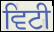
ਵਿਟੀ